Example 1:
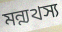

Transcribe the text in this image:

মন্মথস্য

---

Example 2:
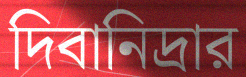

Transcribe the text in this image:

দিবানিদ্রার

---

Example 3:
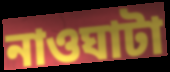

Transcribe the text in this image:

নাওঘাটা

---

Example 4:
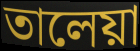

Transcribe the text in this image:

তালেয়া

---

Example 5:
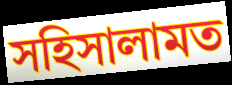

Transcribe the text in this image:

সহিসালামত